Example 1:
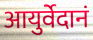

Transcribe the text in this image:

आयुर्वेदानं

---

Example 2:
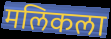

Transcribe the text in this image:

मलिकला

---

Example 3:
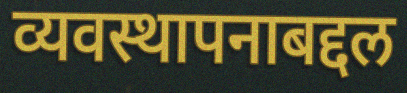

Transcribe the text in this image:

व्यवस्थापनाबद्दल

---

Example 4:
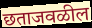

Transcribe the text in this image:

छताजवळील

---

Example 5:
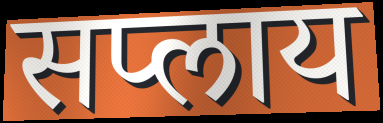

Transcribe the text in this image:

सप्लाय